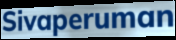
Sivaperuman